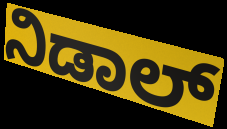
ನಿಡಾಲ್